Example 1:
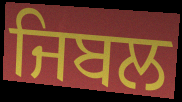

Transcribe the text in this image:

ਜਿਬਲ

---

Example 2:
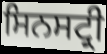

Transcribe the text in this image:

ਸਿਨਸਟ੍ਰੀ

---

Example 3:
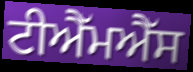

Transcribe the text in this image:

ਟੀਐੱਮਐੱਸ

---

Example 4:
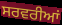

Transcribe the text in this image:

ਸਰਵਰੀਆਂ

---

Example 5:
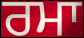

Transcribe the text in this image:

ਰਮਾ